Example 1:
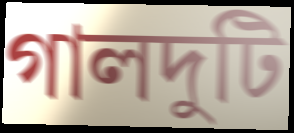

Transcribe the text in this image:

গালদুটি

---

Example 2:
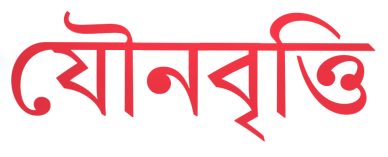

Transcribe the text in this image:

যৌনবৃত্তি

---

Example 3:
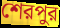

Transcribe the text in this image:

শেরপুর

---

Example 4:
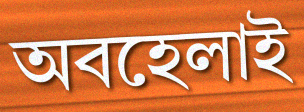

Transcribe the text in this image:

অবহেলাই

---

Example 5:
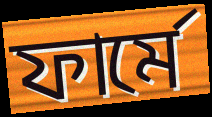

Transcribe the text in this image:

ফার্মে